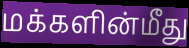
மக்களின்மீது